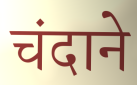
चंदाने